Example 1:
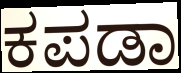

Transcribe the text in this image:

ಕಪಡಾ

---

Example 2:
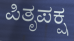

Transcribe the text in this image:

ಪಿತೃಪಕ್ಷ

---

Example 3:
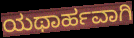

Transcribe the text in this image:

ಯಥಾರ್ಹವಾಗಿ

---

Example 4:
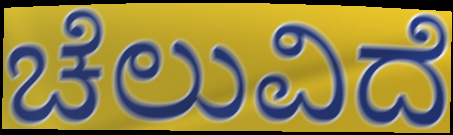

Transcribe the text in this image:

ಚೆಲುವಿದೆ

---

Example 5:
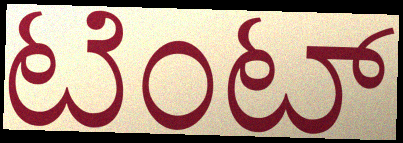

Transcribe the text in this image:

ಟೆಂಟ್